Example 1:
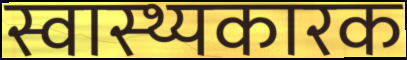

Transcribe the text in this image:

स्वास्थ्यकारक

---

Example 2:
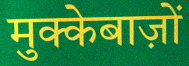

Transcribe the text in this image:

मुक्केबाज़ों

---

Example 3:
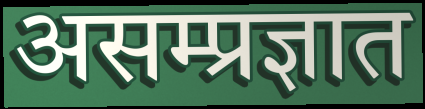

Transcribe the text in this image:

असम्प्रज्ञात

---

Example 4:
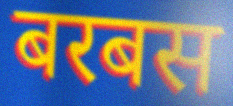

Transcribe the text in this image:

बरबस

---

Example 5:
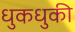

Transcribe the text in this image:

धुकधुकी